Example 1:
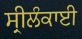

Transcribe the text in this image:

ਸ੍ਰੀਲੰਕਾਈ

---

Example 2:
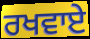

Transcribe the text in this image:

ਰਖਵਾਏ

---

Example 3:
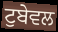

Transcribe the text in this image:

ਟੁਬੇਵਲ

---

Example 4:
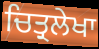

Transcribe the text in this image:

ਚਿਤ੍ਰਲੇਖਾ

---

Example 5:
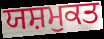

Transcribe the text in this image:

ਯਸ਼ਮੁਕਤ